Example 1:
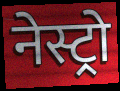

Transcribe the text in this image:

नेस्ट्रो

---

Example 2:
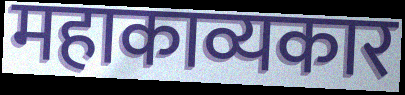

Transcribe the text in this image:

महाकाव्यकार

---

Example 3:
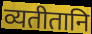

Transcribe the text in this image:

व्यतीतानि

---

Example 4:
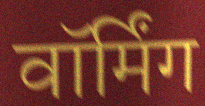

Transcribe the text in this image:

वॉर्मिंग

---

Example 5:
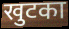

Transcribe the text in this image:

खुटका